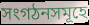
সংগঠনসমূহে